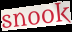
snook